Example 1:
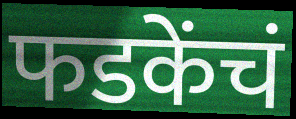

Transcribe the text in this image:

फडकेंचं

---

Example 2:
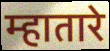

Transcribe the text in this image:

म्हातारे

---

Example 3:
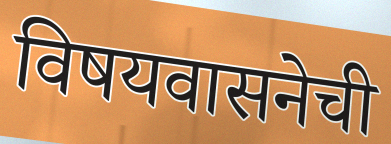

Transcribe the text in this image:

विषयवासनेची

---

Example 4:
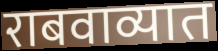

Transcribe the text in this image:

राबवाव्यात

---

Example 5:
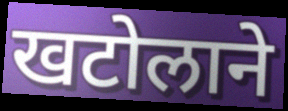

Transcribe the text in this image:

खटोलाने